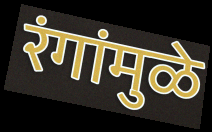
रंगांमुळे